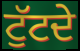
ਟੁੱਟਦੇ